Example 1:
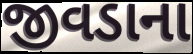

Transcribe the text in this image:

જીવડાના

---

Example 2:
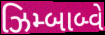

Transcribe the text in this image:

ઝિમ્બાબ્વે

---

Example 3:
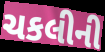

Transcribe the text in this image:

ચકલીની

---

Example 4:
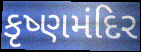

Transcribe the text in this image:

કૃષ્ણમંદિર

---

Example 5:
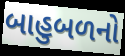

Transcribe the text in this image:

બાહુબળનો